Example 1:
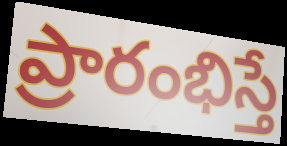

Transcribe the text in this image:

ప్రారంభిస్తే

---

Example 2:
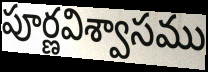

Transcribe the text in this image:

పూర్ణవిశ్వాసము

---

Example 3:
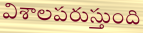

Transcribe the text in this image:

విశాలపరుస్తుంది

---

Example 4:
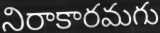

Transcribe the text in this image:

నిరాకారమగు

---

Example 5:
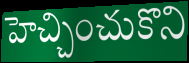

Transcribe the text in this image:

హెచ్చించుకొని